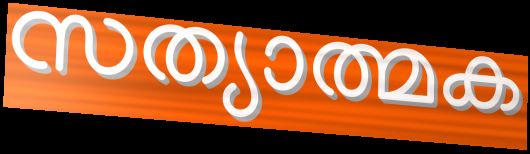
സത്യാത്മക